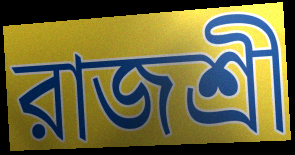
রাজশ্রী